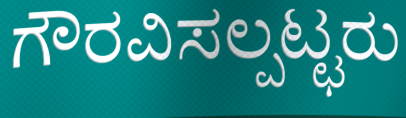
ಗೌರವಿಸಲ್ಪಟ್ಟರು